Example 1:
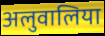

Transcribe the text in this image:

अलुवालिया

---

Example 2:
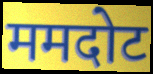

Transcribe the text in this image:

ममदोट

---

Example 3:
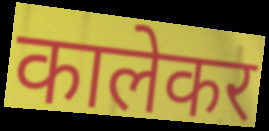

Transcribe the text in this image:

कालेकर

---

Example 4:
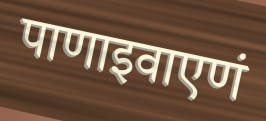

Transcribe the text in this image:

पाणाइवाएणं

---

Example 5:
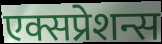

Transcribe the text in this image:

एक्सप्रेशन्स